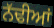
ਨੱਢੀਆਂ